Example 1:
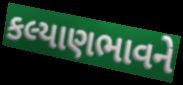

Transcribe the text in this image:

કલ્યાણભાવને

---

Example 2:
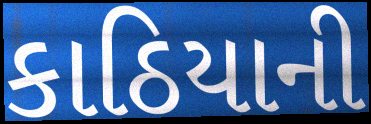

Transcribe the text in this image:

કાઠિયાની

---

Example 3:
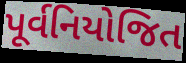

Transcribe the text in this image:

પૂર્વનિયોજિત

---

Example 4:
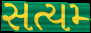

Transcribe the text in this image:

સત્યમ્‍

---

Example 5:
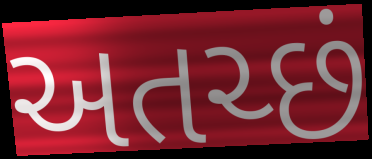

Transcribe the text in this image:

અતચ્છં